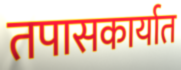
तपासकार्यात